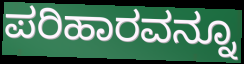
ಪರಿಹಾರವನ್ನೂ